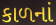
કાળનાં